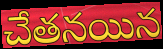
చేతనయిన